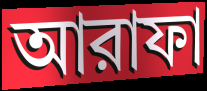
আরাফা